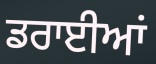
ਡਰਾਈਆਂ